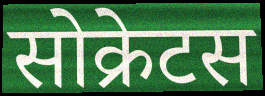
सोक्रेटस